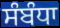
ਸੰਬੰਧਾ